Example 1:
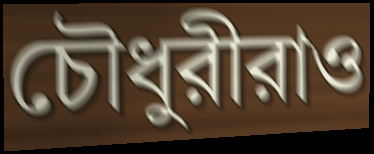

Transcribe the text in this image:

চৌধুরীরাও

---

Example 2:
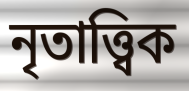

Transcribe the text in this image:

নৃতাত্ত্বিক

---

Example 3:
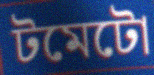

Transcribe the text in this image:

টমেটো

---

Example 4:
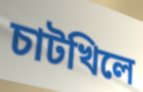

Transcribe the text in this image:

চাটখিলে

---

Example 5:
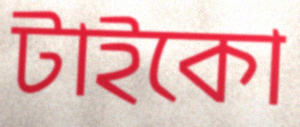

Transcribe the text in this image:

টাইকো